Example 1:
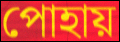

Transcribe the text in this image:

পোহায়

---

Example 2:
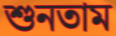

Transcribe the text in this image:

শুনতাম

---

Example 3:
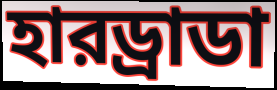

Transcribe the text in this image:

হারড্রাডা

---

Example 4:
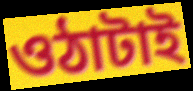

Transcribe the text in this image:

ওঠাটাই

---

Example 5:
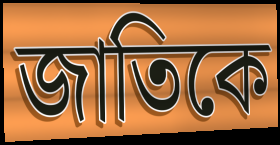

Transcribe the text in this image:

জাতিকে